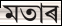
মতাৰ